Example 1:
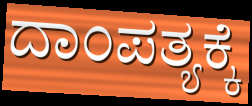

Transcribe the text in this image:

ದಾಂಪತ್ಯಕ್ಕೆ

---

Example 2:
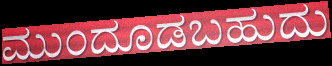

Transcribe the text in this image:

ಮುಂದೂಡಬಹುದು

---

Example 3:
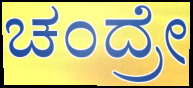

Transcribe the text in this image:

ಚಂದ್ರೇ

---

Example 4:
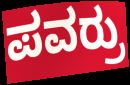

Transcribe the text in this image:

ಪವರ್ರು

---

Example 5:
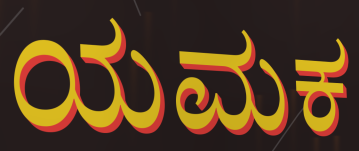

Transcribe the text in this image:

ಯಮಕ